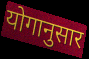
योगानुसार